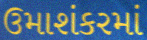
ઉમાશંકરમાં